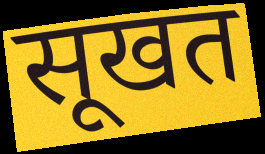
सूखत